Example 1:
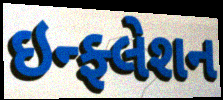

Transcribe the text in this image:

ઇન્ફ્લેશન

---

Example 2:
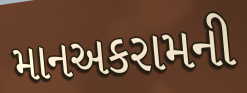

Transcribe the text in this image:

માનઅકરામની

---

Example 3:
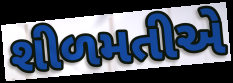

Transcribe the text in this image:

શીળમતીએ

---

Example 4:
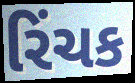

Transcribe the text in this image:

રિંચક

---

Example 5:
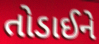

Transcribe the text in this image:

તોડાઈને